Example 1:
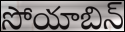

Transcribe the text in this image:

సోయాబిన్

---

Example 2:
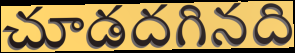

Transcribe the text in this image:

చూడదగినది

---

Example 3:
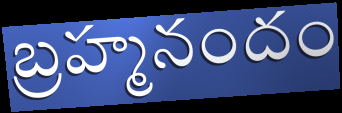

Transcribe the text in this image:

బ్రహ్మనందం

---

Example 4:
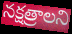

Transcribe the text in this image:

నక్షత్రాలని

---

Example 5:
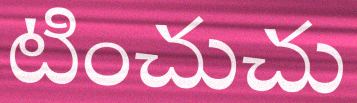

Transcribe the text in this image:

టించుచు